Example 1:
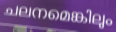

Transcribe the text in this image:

ചലനമെങ്കിലും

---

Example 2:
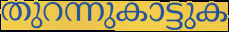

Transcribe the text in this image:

തുറന്നുകാട്ടുക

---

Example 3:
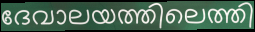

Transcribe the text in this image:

ദേവാലയത്തിലെത്തി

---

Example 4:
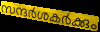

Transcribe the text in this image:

സന്ദർശകർക്കും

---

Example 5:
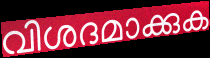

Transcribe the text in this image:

വിശദമാക്കുക